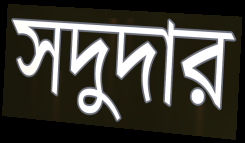
সদুদার